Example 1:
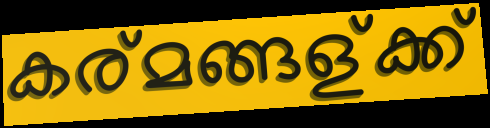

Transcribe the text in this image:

കര്മങ്ങള്ക്ക്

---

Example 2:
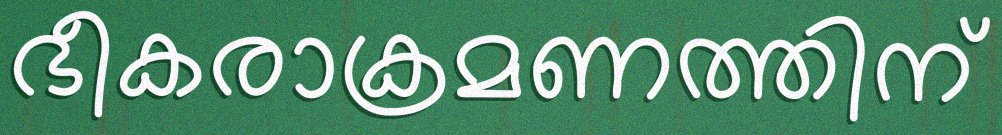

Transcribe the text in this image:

ഭീകരാക്രമണത്തിന്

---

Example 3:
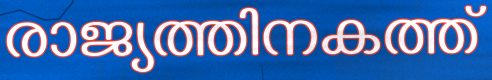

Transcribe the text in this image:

രാജ്യത്തിനകത്ത്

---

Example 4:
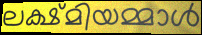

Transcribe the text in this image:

ലക്ഷ്മിയമ്മാൾ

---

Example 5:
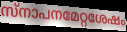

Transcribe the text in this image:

സ്നാപനമേറ്റശേഷം